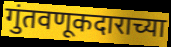
गुंतवणूकदाराच्या